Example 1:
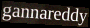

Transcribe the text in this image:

gannareddy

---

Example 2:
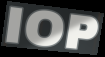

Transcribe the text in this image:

IOP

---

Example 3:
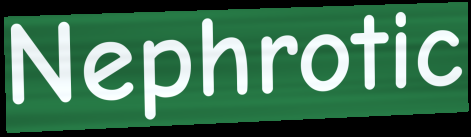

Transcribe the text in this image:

Nephrotic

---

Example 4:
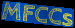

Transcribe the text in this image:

MFCCs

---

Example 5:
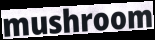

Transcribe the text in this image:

mushroom